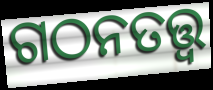
ଗଠନତତ୍ତ୍ୱ